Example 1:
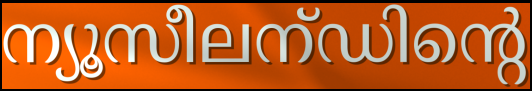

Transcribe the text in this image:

ന്യൂസീലന്ഡിന്റെ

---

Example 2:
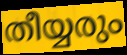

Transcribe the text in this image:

തീയ്യരും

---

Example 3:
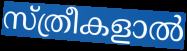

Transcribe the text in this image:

സ്ത്രീകളാൽ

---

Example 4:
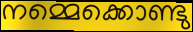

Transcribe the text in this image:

നമ്മെക്കൊണ്ടു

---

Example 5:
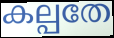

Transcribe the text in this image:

കല്പതേ